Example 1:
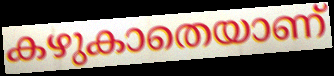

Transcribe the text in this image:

കഴുകാതെയാണ്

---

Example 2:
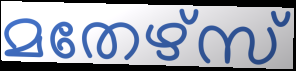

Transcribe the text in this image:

മതേഴ്സ്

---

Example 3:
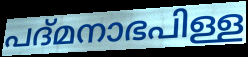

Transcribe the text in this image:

പദ്മനാഭപിള്ള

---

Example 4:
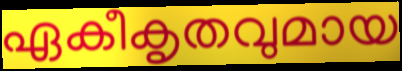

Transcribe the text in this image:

ഏകീകൃതവുമായ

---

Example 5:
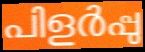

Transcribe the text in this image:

പിളർപ്പു